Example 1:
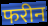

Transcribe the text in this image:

फरीन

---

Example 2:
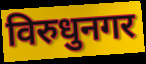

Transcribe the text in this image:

विरुधुनगर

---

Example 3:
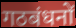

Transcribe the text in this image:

गठबंधनों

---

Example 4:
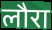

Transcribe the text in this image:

लौरा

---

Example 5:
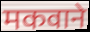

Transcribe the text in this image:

मकवाने